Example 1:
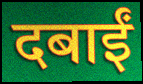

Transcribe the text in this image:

दबाईं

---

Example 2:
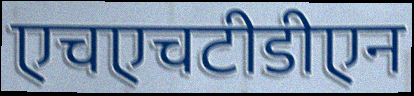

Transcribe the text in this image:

एचएचटीडीएन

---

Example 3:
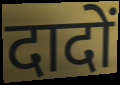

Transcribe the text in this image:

दादों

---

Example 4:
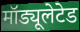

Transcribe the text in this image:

मॉड्यूलेटेड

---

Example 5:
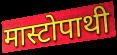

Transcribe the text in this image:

मास्टोपाथी